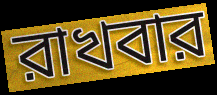
রাখবার